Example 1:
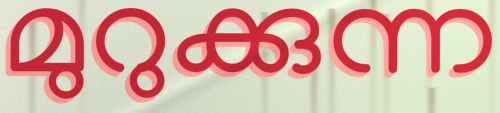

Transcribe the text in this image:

മുറുക്കുന്ന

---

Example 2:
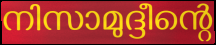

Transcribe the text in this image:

നിസാമുദ്ദീന്റെ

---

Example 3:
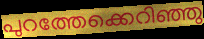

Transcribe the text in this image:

പുറത്തേക്കെറിഞ്ഞു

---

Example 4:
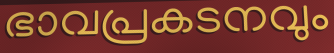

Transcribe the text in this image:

ഭാവപ്രകടനവും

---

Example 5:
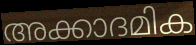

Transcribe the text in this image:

അക്കാദമിക